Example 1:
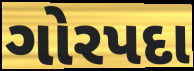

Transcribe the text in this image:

ગોરપદા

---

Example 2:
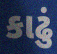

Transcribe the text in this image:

કાઢું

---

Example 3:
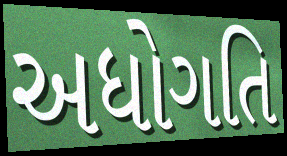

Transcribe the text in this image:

અધોગતિ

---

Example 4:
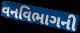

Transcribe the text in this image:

વનવિભાગની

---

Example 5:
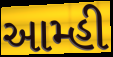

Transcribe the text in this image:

આમ્હી